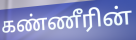
கண்ணீரின்